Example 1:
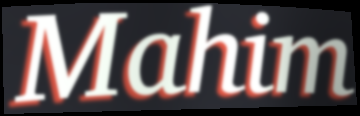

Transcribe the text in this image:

Mahim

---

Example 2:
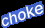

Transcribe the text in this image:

choke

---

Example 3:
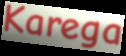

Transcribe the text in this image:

Karega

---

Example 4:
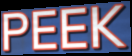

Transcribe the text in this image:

PEEK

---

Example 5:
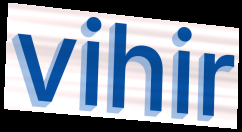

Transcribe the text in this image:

vihir